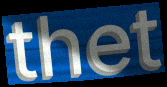
thet